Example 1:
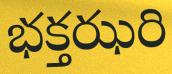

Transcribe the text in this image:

భక్తఝరి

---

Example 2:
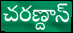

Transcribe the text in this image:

చరణ్దాస్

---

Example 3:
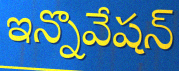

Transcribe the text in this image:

ఇన్నొవేషన్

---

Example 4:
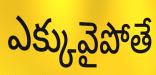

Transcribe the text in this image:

ఎక్కువైపోతే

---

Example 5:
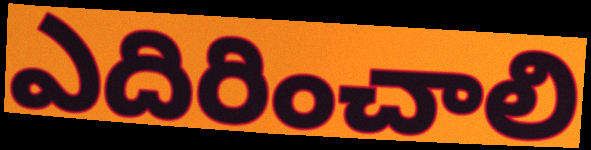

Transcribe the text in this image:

ఎదిరించాలి